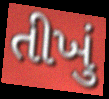
તીખું